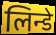
लिन्डे